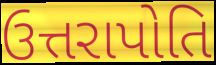
ઉત્તરાપોતિ